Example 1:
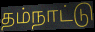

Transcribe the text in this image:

தம்நாட்டு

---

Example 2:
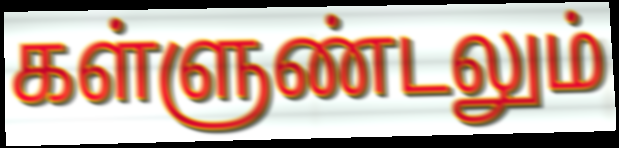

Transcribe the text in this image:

கள்ளுண்டலும்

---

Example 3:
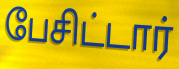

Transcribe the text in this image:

பேசிட்டார்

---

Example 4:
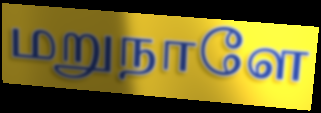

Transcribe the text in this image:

மறுநாளே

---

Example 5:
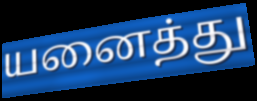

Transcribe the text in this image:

யனைத்து